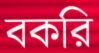
বকরি